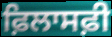
ਫ਼ਿਲਾਸਫ਼ੀ